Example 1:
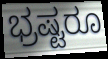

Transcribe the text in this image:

ಭ್ರಷ್ಟರೂ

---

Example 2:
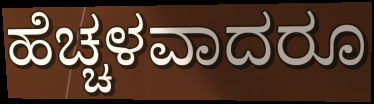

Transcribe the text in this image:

ಹೆಚ್ಚಳವಾದರೂ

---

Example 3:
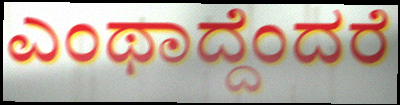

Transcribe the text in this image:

ಎಂಥಾದ್ದೆಂದರೆ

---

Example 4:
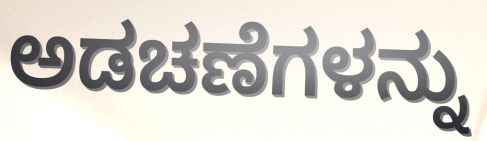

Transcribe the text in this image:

ಅಡಚಣೆಗಳನ್ನು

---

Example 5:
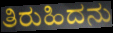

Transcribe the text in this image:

ತಿರುಹಿದನು